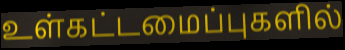
உள்கட்டமைப்புகளில்